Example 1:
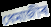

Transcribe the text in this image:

ধেমাজীৰ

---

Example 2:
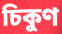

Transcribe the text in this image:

চিকুণ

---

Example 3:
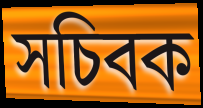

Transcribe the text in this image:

সচিবক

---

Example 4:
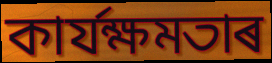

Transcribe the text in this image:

কাৰ্যক্ষমতাৰ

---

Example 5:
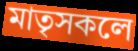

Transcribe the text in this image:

মাতৃসকলে